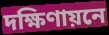
দক্ষিণায়নে